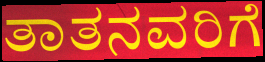
ತಾತನವರಿಗೆ